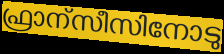
ഫ്രാന്സീസിനോടു